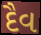
દૈવ